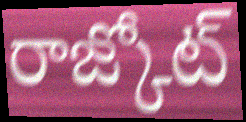
రాజ్కోట్